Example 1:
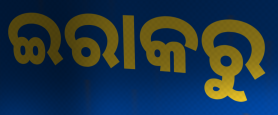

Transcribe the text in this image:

ଇରାକରୁ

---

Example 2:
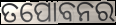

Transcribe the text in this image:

ତପୋବନର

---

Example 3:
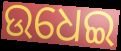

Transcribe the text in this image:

ଉଧେଇ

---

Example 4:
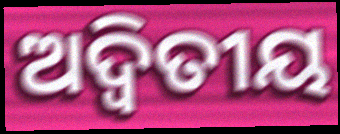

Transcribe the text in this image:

ଅଦ୍ୱିତୀୟ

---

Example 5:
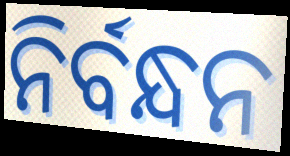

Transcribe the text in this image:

ନିର୍ବନ୍ଧନ